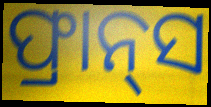
ଫ୍ରାନ୍‍ସ